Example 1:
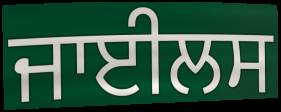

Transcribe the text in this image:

ਜਾਈਲਸ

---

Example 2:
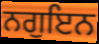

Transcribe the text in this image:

ਨਗੁਇਨ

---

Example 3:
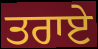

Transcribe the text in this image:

ਤਰਾਏ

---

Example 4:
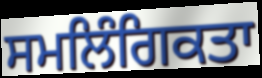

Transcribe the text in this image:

ਸਮਲਿੰਗਿਕਤਾ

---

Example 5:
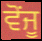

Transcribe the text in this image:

ਵੋਂਜੂ